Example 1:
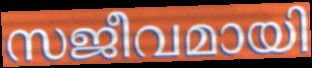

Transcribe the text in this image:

സജീവമായി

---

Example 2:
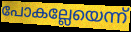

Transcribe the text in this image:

പോകല്ലേയെന്ന്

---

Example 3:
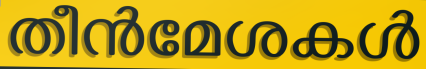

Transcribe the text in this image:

തീൻമേശകൾ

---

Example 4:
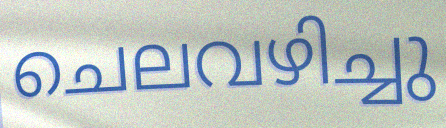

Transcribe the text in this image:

ചെലവഴിച്ചു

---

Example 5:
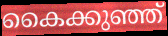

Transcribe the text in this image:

കൈക്കുഞ്ഞ്